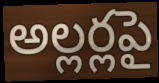
అల్లర్లపై